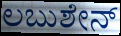
ಲಬುಶೇನ್